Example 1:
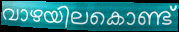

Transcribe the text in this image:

വാഴയിലകൊണ്ട്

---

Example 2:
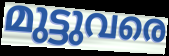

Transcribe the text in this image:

മുട്ടുവരെ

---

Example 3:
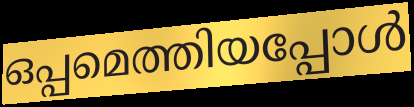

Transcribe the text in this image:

ഒപ്പമെത്തിയപ്പോൾ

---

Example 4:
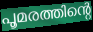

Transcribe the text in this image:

പൂമരത്തിന്റെ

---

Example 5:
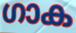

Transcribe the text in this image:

ഗാക